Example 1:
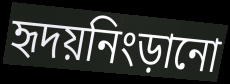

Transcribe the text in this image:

হৃদয়নিংড়ানো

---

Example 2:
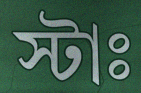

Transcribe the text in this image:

স্টাঃ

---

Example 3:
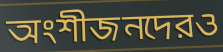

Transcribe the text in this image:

অংশীজনদেরও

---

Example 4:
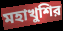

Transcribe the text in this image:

মহাখুশির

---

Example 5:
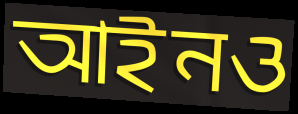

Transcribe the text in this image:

আইনও